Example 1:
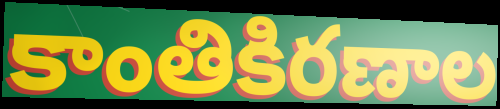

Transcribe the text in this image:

కాంతికిరణాల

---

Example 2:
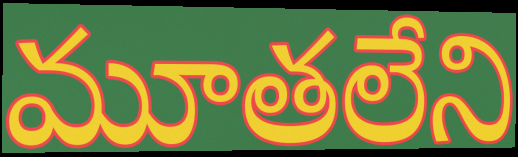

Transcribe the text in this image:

మూతలేని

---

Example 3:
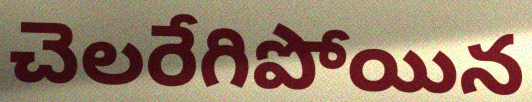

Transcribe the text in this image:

చెలరేగిపోయిన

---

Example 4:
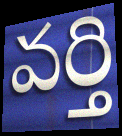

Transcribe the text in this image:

వర్తి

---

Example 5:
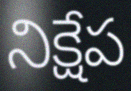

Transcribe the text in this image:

నిక్షేప